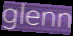
glenn